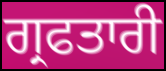
ਗ੍ਰਫਤਾਰੀ